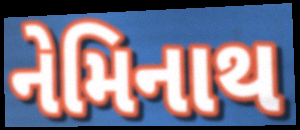
નેમિનાથ